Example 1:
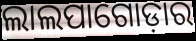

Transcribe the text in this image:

ଲାଲପାଗୋଡ଼ାର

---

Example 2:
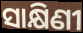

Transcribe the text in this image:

ସାକ୍ଷିଣୀ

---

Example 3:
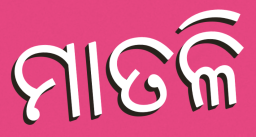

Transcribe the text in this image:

ମାତଳି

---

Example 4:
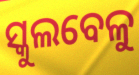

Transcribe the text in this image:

ସ୍କୁଲବେଳୁ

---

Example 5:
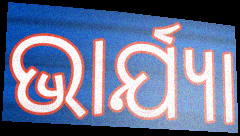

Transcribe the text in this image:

ଭାର୍ଯ୍ୟା